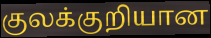
குலக்குறியான